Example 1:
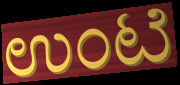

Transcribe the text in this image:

ಉಂಟೆ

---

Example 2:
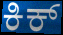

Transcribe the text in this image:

ಕಿಕ್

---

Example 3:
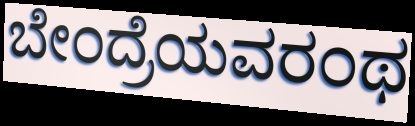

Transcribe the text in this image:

ಬೇಂದ್ರೆಯವರಂಥ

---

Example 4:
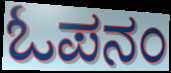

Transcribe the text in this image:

ಓಪನಂ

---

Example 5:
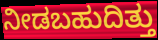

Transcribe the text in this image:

ನೀಡಬಹುದಿತ್ತು